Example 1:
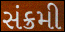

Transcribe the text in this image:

સંક્રમી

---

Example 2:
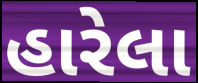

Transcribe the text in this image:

હારેલા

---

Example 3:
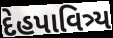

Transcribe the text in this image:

દેહપાવિત્ર્ય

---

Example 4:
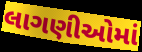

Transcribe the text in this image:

લાગણીઓમાં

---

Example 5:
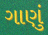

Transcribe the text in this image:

ગાણું